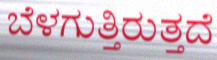
ಬೆಳಗುತ್ತಿರುತ್ತದೆ